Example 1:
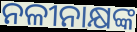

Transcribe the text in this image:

ନଳୀନାକ୍ଷଙ୍କ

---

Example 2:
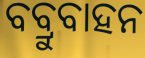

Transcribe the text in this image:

ବବ୍ରୁବାହନ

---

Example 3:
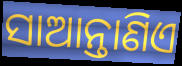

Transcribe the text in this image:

ସାଆନ୍ତାଣିଏ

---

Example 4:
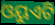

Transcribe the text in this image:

ଓୟୁଏଟି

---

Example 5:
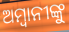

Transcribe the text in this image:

ଅମ୍ବାନୀଙ୍କୁ